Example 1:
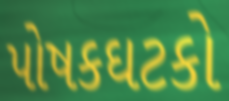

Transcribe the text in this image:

પોષકઘટકો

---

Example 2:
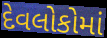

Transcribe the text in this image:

દેવલોકોમાં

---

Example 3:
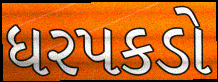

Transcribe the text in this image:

ધરપકડો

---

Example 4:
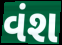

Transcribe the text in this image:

વંશ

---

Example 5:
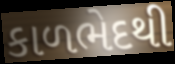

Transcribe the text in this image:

કાળભેદથી